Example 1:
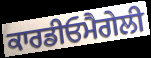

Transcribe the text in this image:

ਕਾਰਡੀਓਮੈਗੇਲੀ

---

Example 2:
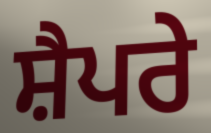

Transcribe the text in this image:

ਸ਼ੈਪਰੇ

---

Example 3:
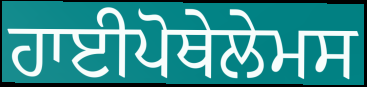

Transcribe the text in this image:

ਹਾਈਪੋਥੇਲੇਮਸ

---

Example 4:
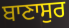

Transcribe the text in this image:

ਬਾਣਾਸੁਰ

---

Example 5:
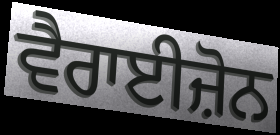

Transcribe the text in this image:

ਵੈਰਾਈਜ਼ੋਨ